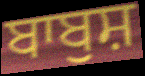
ਬਾਬੁਸ਼